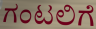
ಗಂಟಲಿಗೆ